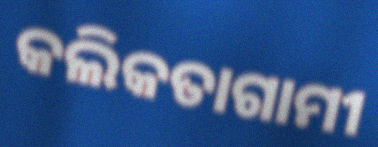
କଲିକତାଗାମୀ